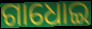
ଗାଧୋଇ